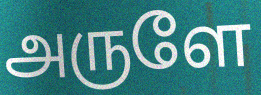
அருளே